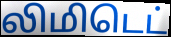
லிமிடெட்